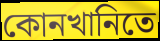
কোনখানিতে